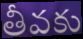
తీవకు